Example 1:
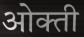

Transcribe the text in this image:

ओक्ती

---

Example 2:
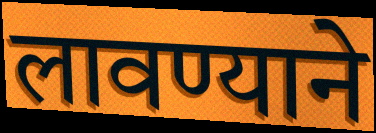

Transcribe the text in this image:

लावण्याने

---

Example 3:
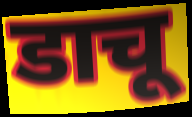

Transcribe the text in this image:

डाचू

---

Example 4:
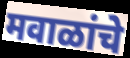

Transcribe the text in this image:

मवाळांचे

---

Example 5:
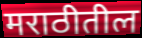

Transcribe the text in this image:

मराठीतील